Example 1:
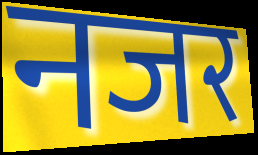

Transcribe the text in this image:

नजर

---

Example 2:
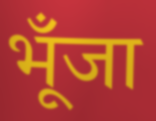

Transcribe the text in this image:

भूँजा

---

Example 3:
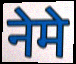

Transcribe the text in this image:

नेमे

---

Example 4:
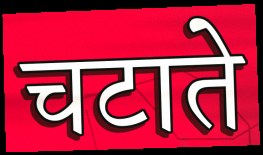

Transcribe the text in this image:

चटाते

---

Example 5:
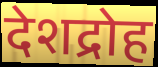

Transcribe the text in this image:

देशद्रोह